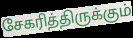
சேகரித்திருக்கும்